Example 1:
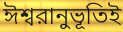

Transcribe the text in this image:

ঈশ্বরানুভূতিই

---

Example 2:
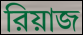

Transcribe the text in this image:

রিয়াজ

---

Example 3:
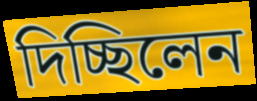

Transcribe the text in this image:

দিচ্ছিলেন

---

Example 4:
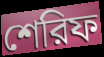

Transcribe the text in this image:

শেরিফ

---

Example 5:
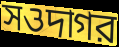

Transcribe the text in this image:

সওদাগর